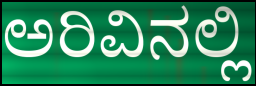
ಅರಿವಿನಲ್ಲಿ